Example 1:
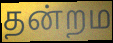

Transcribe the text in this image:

தன்றம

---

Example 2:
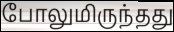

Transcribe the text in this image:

போலுமிருந்தது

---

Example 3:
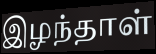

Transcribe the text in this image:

இழந்தாள்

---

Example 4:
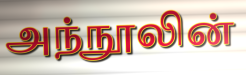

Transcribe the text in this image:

அந்நூலின்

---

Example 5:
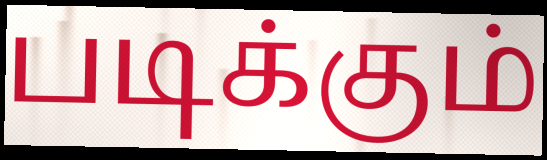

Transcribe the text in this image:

படிக்கும்